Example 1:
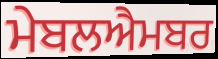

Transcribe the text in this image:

ਮੇਬਲਐਮਬਰ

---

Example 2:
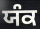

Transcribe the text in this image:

ਯੰਕ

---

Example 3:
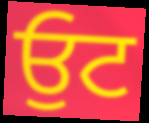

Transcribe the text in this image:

ਓੁਟ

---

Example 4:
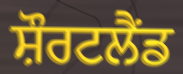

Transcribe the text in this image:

ਸ਼ੌਰਟਲੈਂਡ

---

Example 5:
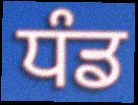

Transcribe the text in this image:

ਧੰਡ